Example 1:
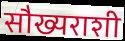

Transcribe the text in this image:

सौख्यराशी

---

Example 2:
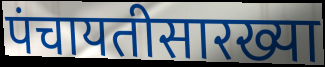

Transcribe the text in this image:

पंचायतीसारख्या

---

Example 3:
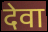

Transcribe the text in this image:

देवा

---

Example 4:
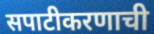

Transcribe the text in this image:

सपाटीकरणाची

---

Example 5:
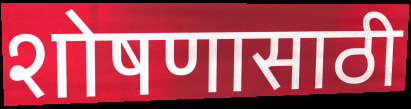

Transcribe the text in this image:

शोषणासाठी